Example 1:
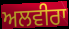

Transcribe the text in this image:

ਅਲਵੀਰਾ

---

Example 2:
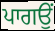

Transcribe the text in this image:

ਪਾਗਉਂ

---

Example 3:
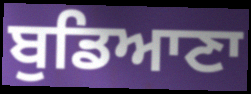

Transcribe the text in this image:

ਬੁਡਿਆਣਾ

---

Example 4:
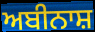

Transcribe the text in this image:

ਅਬੀਨਾਸ਼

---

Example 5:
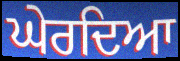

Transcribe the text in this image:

ਘੇਰਦਿਆ